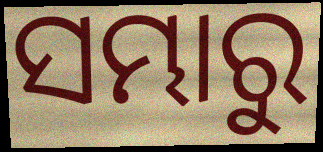
ସମ୍ଭାରୁ